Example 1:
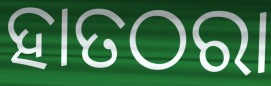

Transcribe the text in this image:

ହାତଠରା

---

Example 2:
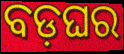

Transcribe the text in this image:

ବଡ଼ଘର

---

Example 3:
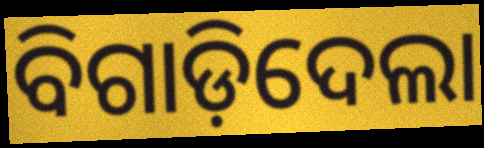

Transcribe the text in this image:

ବିଗାଡ଼ିଦେଲା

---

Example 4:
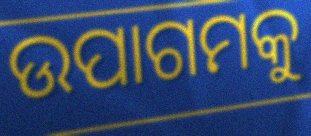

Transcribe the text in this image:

ଉପାଗମକୁ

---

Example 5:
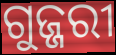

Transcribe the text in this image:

ଗୁଜ୍ଜରୀ